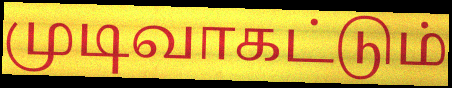
முடிவாகட்டும்